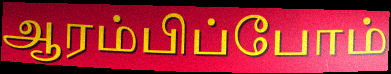
ஆரம்பிப்போம்